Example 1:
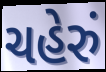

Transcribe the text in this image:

ચહેરું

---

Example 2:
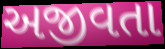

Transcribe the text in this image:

અજીવતા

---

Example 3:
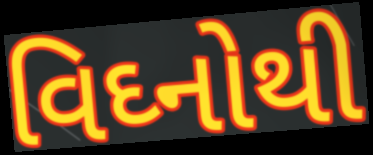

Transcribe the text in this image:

વિઘ્નોથી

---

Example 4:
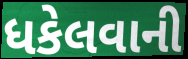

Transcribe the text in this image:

ધકેલવાની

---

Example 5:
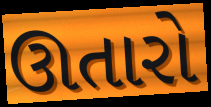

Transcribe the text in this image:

ઊતારો